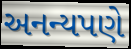
અનન્યપણે